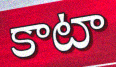
కాటా